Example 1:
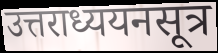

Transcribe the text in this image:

उत्तराध्ययनसूत्र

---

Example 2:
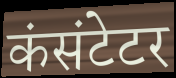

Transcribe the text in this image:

कंसंटेटर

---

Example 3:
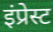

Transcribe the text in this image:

इंप्रेस्ट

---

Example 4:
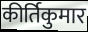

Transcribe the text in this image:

कीर्तिकुमार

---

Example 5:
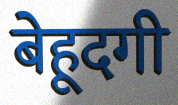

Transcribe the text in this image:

बेहूदगी